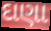
દાણા